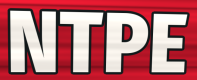
NTPE